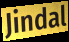
Jindal